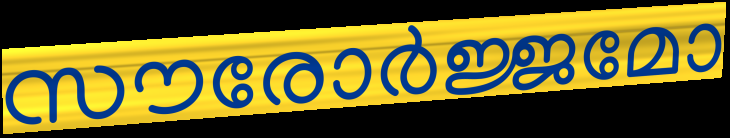
സൗരോർജ്ജമോ